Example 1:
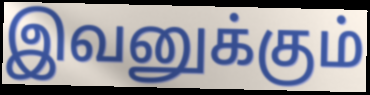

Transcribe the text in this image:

இவனுக்கும்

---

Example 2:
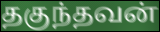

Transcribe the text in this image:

தகுந்தவன்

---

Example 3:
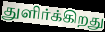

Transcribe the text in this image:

துளிர்க்கிறது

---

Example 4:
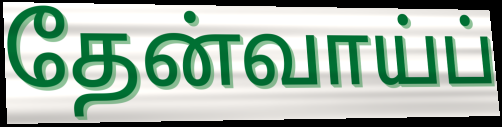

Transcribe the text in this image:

தேன்வாய்ப்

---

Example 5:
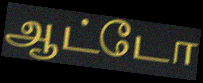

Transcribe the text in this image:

ஆட்டோ